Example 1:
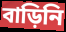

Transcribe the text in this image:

বাড়িনি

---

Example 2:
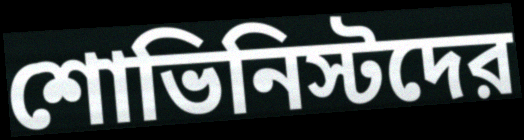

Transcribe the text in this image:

শোভিনিস্টদের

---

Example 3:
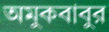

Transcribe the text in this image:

অমুকবাবুর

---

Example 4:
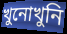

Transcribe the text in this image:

খুনোখুনি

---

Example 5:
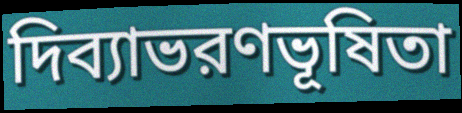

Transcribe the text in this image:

দিব্যাভরণভূষিতা